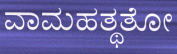
ವಾಮಹತ್ಥತೋ